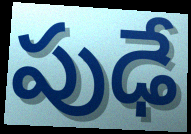
పుఢే